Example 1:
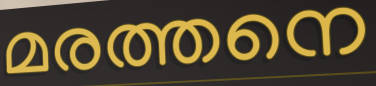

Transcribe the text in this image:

മരത്തനെ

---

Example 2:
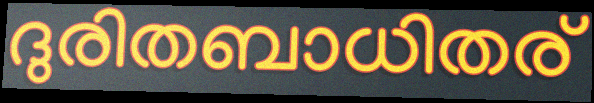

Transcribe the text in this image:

ദുരിതബാധിതര്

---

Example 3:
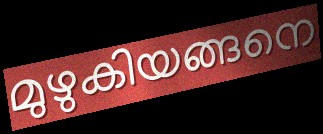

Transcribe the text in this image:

മുഴുകിയങ്ങനെ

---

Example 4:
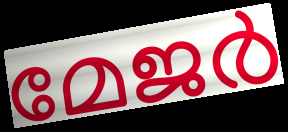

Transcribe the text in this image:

മേജർ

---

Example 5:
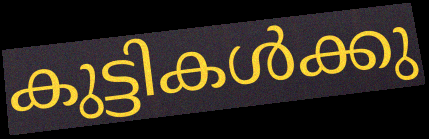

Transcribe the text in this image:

കുട്ടികൾക്കു